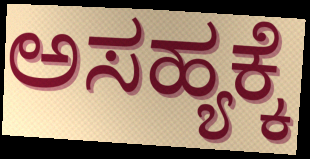
ಅಸಹ್ಯಕ್ಕೆ